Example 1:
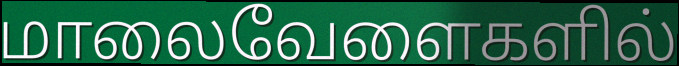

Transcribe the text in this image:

மாலைவேளைகளில்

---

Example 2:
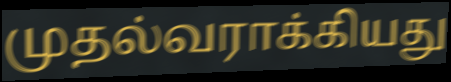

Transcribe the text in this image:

முதல்வராக்கியது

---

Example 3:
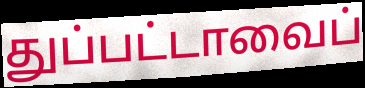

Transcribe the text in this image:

துப்பட்டாவைப்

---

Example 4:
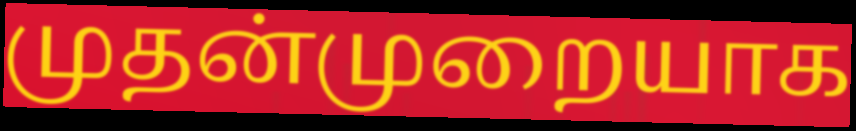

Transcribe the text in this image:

முதன்முறையாக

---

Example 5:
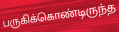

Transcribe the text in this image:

பருகிக்கொண்டிருந்த